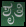
ಶೃತಿ